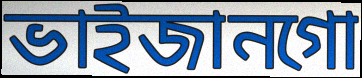
ভাইজানগো